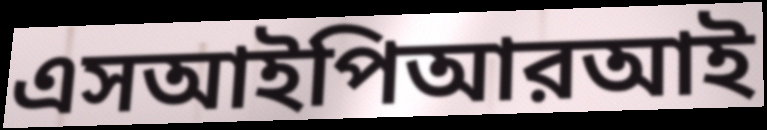
এসআইপিআরআই